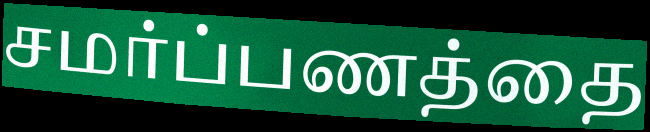
சமர்ப்பணத்தை